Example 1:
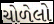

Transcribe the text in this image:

ચોળેલો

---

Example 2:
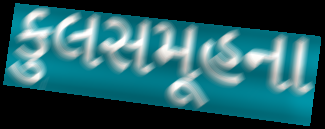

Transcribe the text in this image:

કુલસમૂહના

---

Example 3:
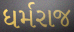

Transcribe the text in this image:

ધર્મરાજ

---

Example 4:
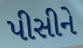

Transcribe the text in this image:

પીસીને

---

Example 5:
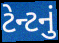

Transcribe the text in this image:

ટેન્ટનું